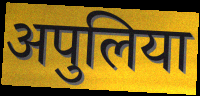
अपुलिया